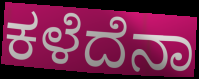
ಕಳೆದೆನಾ